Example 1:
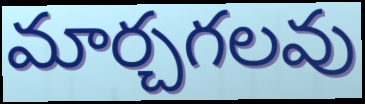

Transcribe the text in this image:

మార్చగలవు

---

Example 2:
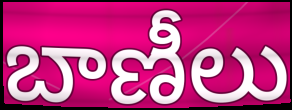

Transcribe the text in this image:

బాణీలు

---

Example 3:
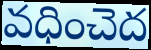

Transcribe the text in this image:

వధించెద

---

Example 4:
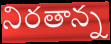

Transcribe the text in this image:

నిరతాన్న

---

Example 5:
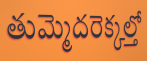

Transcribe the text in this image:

తుమ్మెదరెక్కల్తో